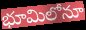
భూమిలోనూ